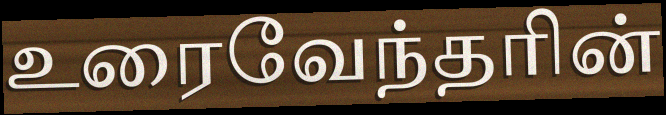
உரைவேந்தரின்